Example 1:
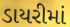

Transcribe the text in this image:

ડાયરીમાં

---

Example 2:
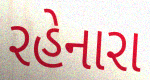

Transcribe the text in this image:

રહેનારા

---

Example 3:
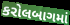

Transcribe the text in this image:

કરોલબાગમાં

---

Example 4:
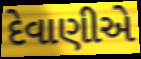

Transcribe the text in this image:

દેવાણીએ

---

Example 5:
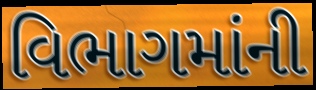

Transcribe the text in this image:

વિભાગમાંની